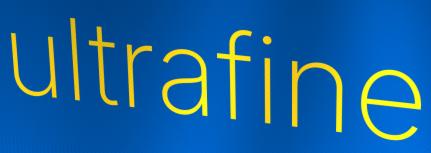
ultrafine